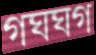
গঘঘগ